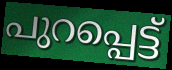
പുറപ്പെട്ട്